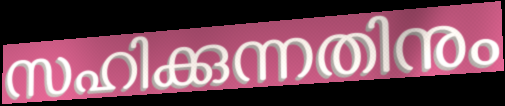
സഹിക്കുന്നതിനും